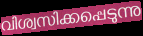
വിശ്വസിക്കപ്പെടുന്നു